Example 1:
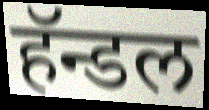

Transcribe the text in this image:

हॅन्डल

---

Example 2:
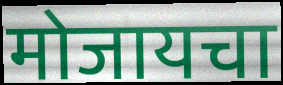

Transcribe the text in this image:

मोजायचा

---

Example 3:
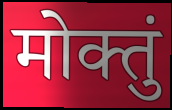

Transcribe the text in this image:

मोक्तुं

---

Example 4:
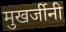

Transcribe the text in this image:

मुखर्जीनी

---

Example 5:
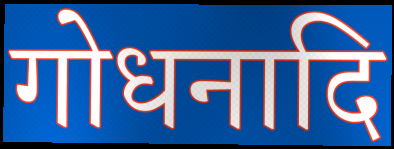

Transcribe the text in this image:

गोधनादि